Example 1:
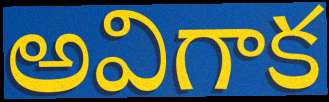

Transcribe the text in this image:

అవిగాక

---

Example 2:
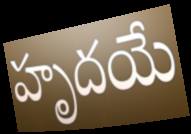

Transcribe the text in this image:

హృదయే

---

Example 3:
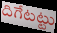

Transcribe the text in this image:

దిగేటట్టు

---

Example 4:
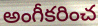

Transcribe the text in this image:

అంగీకరించ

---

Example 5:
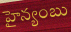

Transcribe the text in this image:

హైన్యంబు